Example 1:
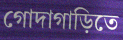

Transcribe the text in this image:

গোদাগাড়িতে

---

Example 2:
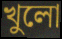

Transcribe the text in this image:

খুলো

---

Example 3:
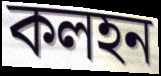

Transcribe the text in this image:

কলহন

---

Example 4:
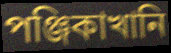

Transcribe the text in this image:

পঞ্জিকাখানি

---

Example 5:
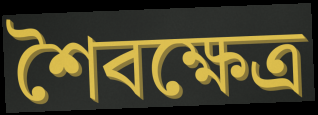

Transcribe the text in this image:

শৈবক্ষেত্র